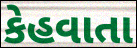
કેહવાતા